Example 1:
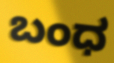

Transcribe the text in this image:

ಬಂಧ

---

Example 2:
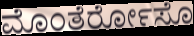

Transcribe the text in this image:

ಮೊಂತೆರ್ರೋಸೊ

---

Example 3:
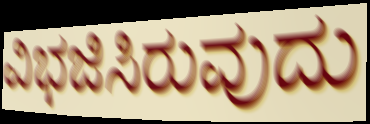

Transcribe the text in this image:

ವಿಭಜಿಸಿರುವುದು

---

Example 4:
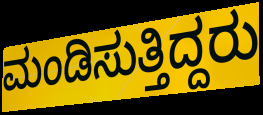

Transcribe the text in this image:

ಮಂಡಿಸುತ್ತಿದ್ದರು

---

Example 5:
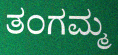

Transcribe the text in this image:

ತಂಗಮ್ಮ